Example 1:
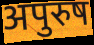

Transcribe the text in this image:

अपुरुष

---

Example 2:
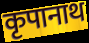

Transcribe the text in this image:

कृपानाथ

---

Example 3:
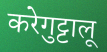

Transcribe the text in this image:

करेगुट्टालू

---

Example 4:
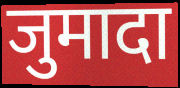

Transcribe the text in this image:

जुमादा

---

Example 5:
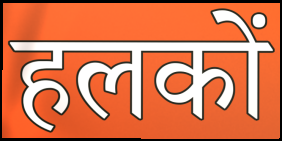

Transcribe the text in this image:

हलकों